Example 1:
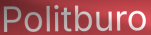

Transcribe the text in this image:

Politburo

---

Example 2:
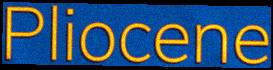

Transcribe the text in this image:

Pliocene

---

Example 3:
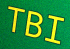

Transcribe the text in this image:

TBI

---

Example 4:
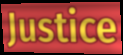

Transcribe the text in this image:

Justice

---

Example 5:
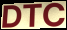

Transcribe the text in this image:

DTC